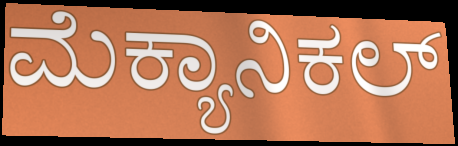
ಮೆಕ್ಯಾನಿಕಲ್